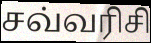
சவ்வரிசி